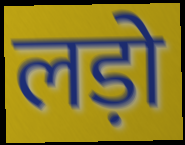
लड़ो